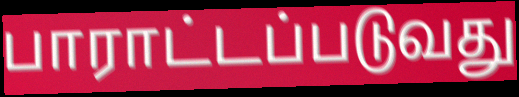
பாராட்டப்படுவது